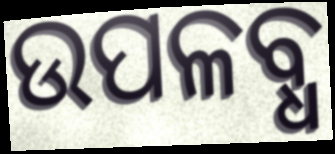
ଉପଳବ୍ଧ